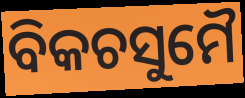
ବିକଚସୁମୈ